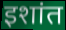
इशांत